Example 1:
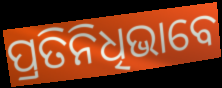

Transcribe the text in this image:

ପ୍ରତିନିଧିଭାବେ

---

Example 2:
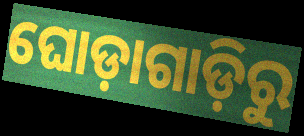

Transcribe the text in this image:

ଘୋଡ଼ାଗାଡ଼ିରୁ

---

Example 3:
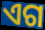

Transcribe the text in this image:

ଏଗ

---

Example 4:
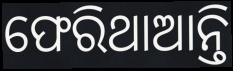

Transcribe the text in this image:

ଫେରିଥାଆନ୍ତି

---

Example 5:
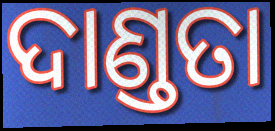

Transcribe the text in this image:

ଦାଣ୍ଡତା